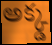
అక్క్డ